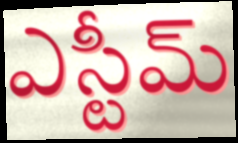
ఎస్టీమ్